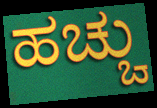
ಹಚ್ಚು